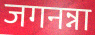
जगनन्ना